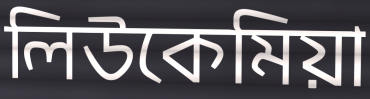
লিউকেমিয়া